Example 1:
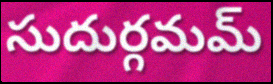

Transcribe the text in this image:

సుదుర్గమమ్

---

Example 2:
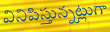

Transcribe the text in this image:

వినిపిస్తున్నట్లుగా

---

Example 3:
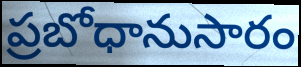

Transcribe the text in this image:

ప్రబోధానుసారం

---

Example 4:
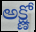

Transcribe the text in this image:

అక్ష్ణో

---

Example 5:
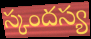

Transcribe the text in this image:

స్కందస్య